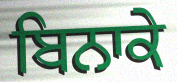
ਬਿਨਾਕੇ